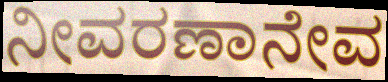
ನೀವರಣಾನೇವ